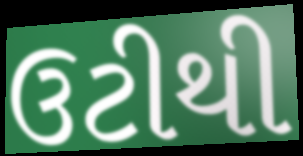
ઉટીથી